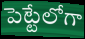
పెట్టేలోగా